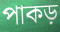
পাকড়